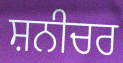
ਸ਼ਨੀਚਰ